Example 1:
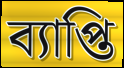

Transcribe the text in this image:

ব্যাপ্তি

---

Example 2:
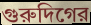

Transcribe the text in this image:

গুরুদিগের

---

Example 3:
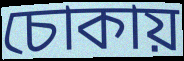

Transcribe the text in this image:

চোকায়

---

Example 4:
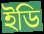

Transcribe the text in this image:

ইডি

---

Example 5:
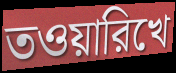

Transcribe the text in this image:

তওয়ারিখে